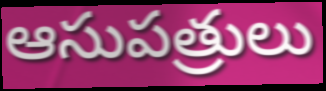
ఆసుపత్రులు